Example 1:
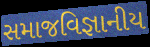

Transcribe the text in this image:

સમાજવિજ્ઞાનીય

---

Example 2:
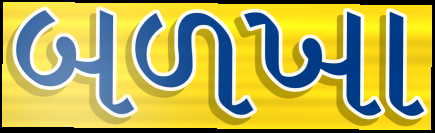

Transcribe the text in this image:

બળખા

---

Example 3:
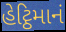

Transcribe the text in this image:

હેટ્ઠિમાનં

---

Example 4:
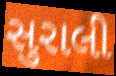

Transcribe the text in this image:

સુરાલી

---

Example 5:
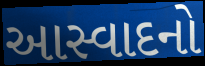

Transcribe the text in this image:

આસ્વાદનો